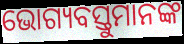
ଭୋଗ୍ୟବସ୍ତୁମାନଙ୍କ